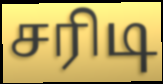
சரிடி